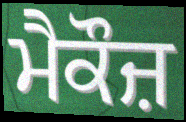
ਮੈਕੌਜ਼